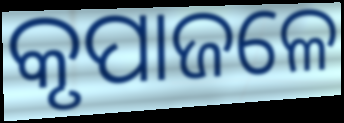
କୃପାଜଳେ